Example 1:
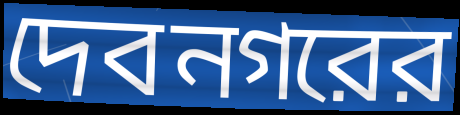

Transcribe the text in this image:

দেবনগরের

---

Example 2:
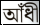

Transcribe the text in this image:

আঁধী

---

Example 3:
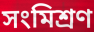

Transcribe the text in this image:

সংমিশ্রণ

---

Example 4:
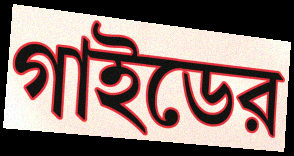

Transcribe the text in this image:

গাইডের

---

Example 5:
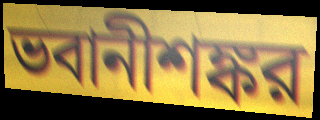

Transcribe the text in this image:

ভবানীশঙ্কর